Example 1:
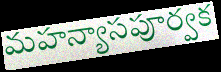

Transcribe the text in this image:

మహన్యాసపూర్వక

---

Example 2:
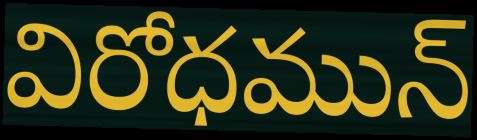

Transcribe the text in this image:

విరోధమున్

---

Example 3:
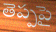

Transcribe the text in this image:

తెప్పపై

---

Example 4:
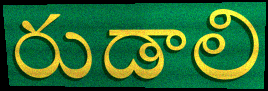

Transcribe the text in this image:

రుడాలి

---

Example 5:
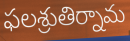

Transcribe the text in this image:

ఫలశ్రుతిర్నామ